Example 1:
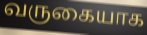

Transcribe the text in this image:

வருகையாக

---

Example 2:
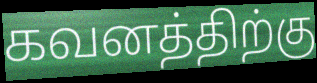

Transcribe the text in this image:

கவனத்திற்கு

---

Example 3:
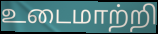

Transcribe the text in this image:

உடைமாற்றி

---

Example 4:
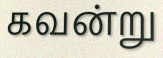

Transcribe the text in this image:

கவன்று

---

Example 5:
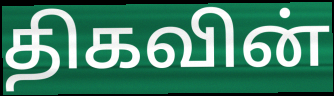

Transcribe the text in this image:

திகவின்